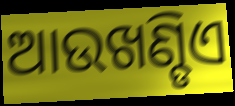
ଆଉଖଣ୍ଡିଏ